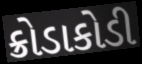
ક્રોડાકોડી